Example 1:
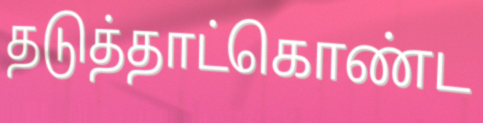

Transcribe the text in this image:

தடுத்தாட்கொண்ட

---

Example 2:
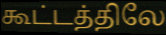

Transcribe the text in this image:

கூட்டத்திலே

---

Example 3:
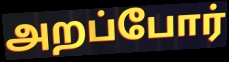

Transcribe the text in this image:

அறப்போர்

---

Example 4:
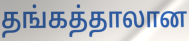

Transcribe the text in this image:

தங்கத்தாலான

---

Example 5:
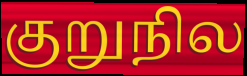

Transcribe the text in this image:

குறுநில